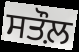
ਸਤੌਲ਼